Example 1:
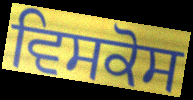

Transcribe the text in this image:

ਵਿਸਕੋਸ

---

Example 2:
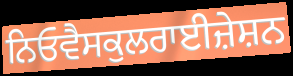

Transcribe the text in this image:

ਨਿਓਵੈਸਕੁਲਰਾਈਜ਼ੇਸ਼ਨ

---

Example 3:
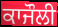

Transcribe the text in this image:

ਕਾਜੌਲੀ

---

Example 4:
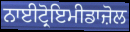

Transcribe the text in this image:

ਨਾਈਟ੍ਰੋਇਮੀਡਾਜ਼ੋਲ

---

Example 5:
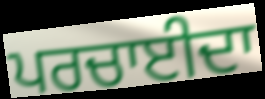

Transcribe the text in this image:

ਪਰਚਾਈਦਾ